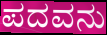
ಪದವನು